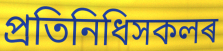
প্ৰতিনিধিসকলৰ